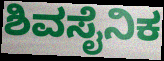
ಶಿವಸೈನಿಕ